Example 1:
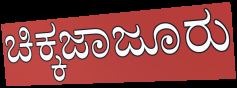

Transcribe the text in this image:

ಚಿಕ್ಕಜಾಜೂರು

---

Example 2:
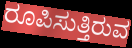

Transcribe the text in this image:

ರೂಪಿಸುತ್ತಿರುವ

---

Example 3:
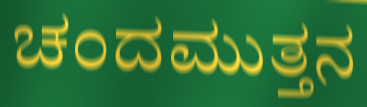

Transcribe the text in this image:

ಚಂದಮುತ್ತನ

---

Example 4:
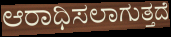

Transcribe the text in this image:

ಆರಾಧಿಸಲಾಗುತ್ತದೆ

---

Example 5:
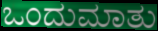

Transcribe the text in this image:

ಒಂದುಮಾತು